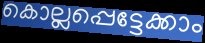
കൊല്ലപ്പെട്ടേക്കാം